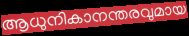
ആധുനികാനന്തരവുമായ